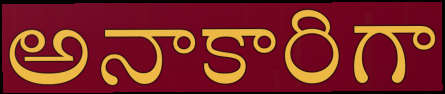
అనాకారిగా